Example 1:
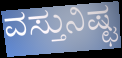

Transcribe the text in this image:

ವಸ್ತುನಿಷ್ಟ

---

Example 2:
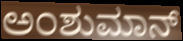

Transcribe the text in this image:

ಅಂಶುಮಾನ್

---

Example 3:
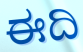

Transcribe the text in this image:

ಈದಿ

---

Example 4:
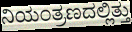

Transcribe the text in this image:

ನಿಯಂತ್ರಣದಲ್ಲಿತ್ತು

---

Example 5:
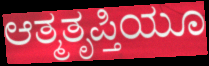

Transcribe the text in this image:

ಆತ್ಮತೃಪ್ತಿಯೂ